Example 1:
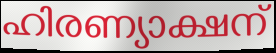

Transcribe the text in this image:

ഹിരണ്യാക്ഷന്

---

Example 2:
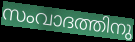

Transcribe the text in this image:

സംവാദത്തിനു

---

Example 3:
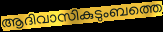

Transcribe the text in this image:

ആദിവാസികുടുംബത്തെ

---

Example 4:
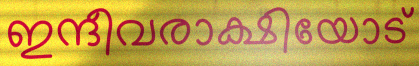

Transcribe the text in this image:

ഇന്ദീവരാക്ഷിയോട്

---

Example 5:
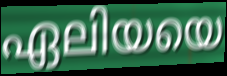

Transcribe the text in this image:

ഏലിയയെ